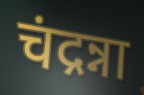
चंद्रन्ना